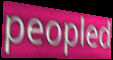
peopled